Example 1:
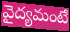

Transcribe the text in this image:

వైద్యమంటే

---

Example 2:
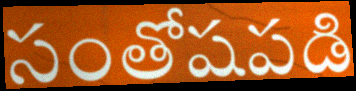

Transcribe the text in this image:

సంతోషపడి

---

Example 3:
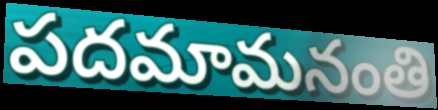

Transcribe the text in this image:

పదమామనంతి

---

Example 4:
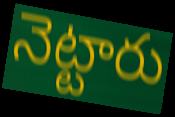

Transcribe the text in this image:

నెట్టారు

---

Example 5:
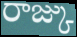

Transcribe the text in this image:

రాజ్కు